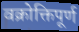
वक्रोक्तिपूर्ण